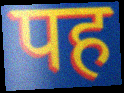
पह